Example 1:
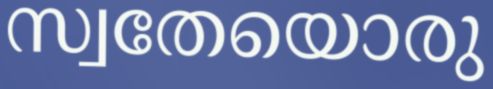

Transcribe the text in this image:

സ്വതേയൊരു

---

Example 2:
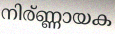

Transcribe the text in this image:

നിര്ണ്ണായക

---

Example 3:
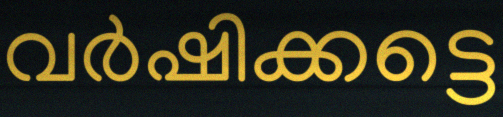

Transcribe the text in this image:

വർഷിക്കട്ടെ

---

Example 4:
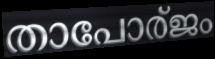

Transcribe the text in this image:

താപോര്ജം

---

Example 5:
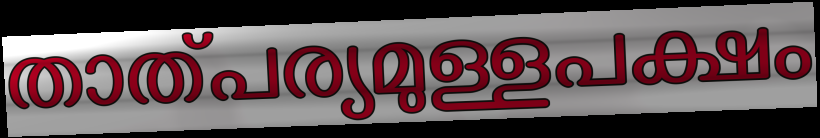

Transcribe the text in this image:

താത്പര്യമുള്ളപക്ഷം